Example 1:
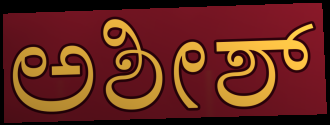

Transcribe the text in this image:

ಅಶೀಶ್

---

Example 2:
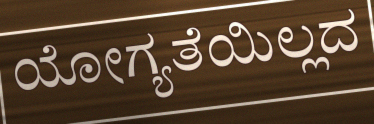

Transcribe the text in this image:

ಯೋಗ್ಯತೆಯಿಲ್ಲದ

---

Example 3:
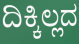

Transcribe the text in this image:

ದಿಕ್ಕಿಲ್ಲದ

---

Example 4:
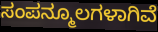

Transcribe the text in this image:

ಸಂಪನ್ಮೂಲಗಳಾಗಿವೆ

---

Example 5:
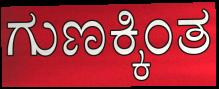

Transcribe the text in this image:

ಗುಣಕ್ಕಿಂತ